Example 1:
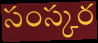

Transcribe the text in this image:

సంస్కర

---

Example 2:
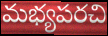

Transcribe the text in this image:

మభ్యపరచి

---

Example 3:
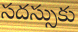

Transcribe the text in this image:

సదస్సుకు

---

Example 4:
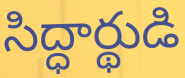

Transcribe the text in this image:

సిద్ధార్థుడి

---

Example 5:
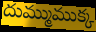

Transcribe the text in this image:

దుమ్ముముక్క